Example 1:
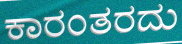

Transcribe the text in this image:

ಕಾರಂತರದು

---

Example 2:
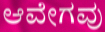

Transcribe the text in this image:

ಆವೇಗವು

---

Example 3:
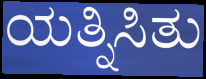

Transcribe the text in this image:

ಯತ್ನಿಸಿತು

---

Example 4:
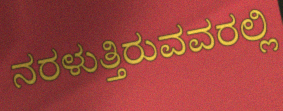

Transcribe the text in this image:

ನರಳುತ್ತಿರುವವರಲ್ಲಿ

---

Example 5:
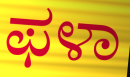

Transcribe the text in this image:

ಫಳಾ